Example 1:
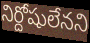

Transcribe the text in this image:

నిర్దోషులేనని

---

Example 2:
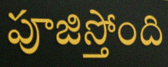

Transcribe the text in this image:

పూజిస్తోంది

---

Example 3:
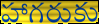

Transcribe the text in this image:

హాగరుకు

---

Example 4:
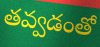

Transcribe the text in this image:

తవ్వడంతో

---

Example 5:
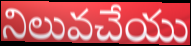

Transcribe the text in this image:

నిలువచేయు